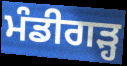
ਮੰਡੀਗੜ੍ਹ